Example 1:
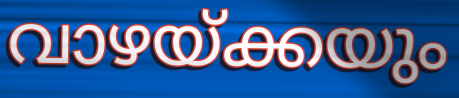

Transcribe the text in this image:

വാഴയ്ക്കയും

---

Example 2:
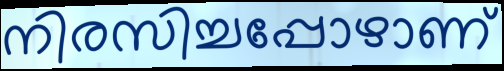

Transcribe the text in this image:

നിരസിച്ചപ്പോഴാണ്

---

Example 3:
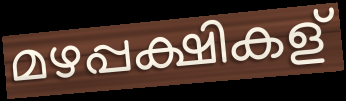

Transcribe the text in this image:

മഴപ്പക്ഷികള്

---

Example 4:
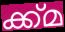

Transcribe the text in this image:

ക്ക്മ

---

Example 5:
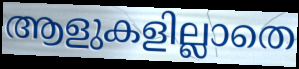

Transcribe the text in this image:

ആളുകളില്ലാതെ